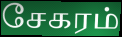
சேகரம்